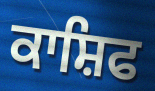
ਕਾਸ਼ਿਫ